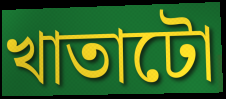
খাতাটো